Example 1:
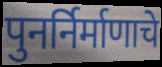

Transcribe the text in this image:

पुनर्निर्माणाचे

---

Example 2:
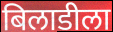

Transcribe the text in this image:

बिलाडीला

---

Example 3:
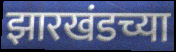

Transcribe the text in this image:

झारखंडच्या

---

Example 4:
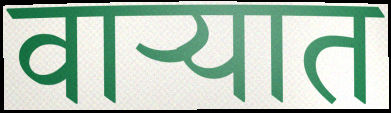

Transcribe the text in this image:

वाऱ्यात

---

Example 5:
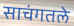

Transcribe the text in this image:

साचंगतले